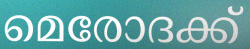
മെരോദക്ക്